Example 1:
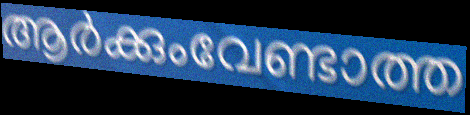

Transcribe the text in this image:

ആർക്കുംവേണ്ടാത്ത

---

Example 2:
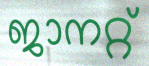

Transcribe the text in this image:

ജാനറ്റ്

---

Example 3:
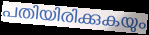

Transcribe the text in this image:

പതിയിരിക്കുകയും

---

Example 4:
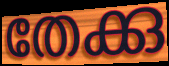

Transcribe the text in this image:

തേക്കു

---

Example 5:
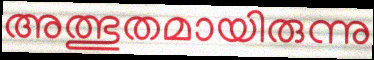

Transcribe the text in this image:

അത്ഭുതമായിരുന്നു